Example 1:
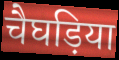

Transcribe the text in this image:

चैघड़िया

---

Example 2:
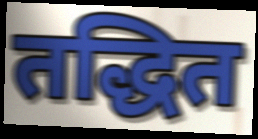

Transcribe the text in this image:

तद्धित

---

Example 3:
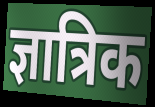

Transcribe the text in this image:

ज्ञात्रिक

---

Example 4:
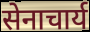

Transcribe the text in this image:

सेनाचार्य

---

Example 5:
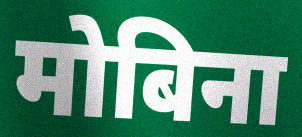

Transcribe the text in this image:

मोबिना